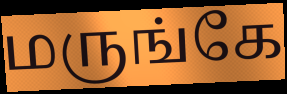
மருங்கே